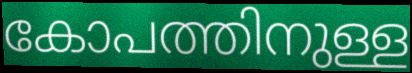
കോപത്തിനുള്ള